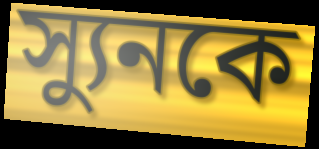
স্যুনকে